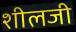
शीलजी